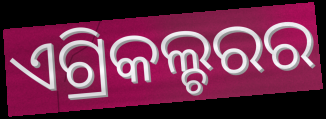
ଏଗ୍ରିକଲ୍ଚରର